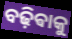
ବଢ଼ିଵାକୁ